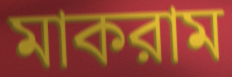
মাকরাম